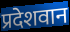
प्रदेशवान